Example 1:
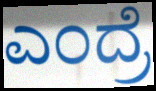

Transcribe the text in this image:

ಎಂದ್ರೆ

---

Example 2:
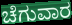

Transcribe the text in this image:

ಚೆಗುವಾರ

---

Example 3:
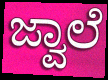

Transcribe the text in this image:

ಜ್ವಾಲೆ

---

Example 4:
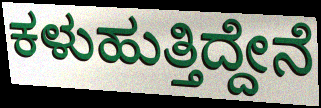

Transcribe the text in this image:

ಕಳುಹುತ್ತಿದ್ದೇನೆ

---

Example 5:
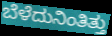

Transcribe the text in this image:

ಬೆಳೆದುನಿಂತಿತ್ತು